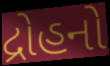
દ્રોહનો